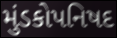
મુંડકોપનિષદ